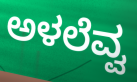
ಅಳಲೆವ್ವ